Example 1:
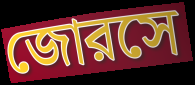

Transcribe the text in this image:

জোরসে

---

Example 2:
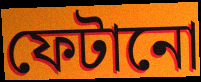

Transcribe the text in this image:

ফেটানো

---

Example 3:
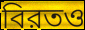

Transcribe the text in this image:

বিরতও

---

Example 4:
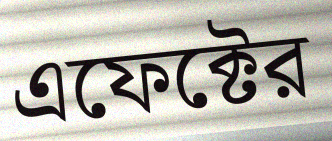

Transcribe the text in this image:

এফেক্টের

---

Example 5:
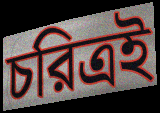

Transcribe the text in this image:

চরিত্রই